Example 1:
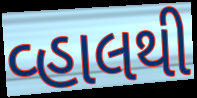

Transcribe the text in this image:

વ્હાલથી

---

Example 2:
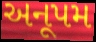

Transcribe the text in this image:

અનૂપમ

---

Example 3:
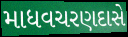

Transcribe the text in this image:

માધવચરણદાસે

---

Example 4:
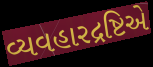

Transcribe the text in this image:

વ્યવહારદ્રષ્ટિએ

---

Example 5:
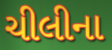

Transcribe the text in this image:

ચીલીના